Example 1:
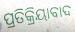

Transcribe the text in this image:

ପ୍ରତିକ୍ରିୟାବାଦ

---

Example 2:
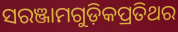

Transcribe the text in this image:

ସରଞ୍ଜାମଗୁଡ଼ିକପ୍ରତିଥର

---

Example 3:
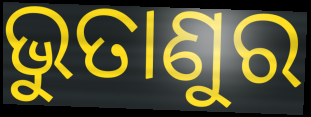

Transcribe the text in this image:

ଭୁତାଣୁର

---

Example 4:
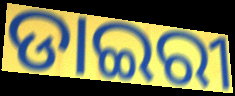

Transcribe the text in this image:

ଡାଇରୀ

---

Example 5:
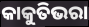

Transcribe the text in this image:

କାକୁତିଭରା